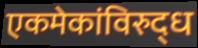
एकमेकांविरुद्ध